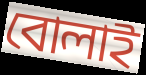
বোলাই